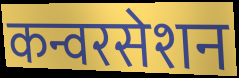
कन्वरसेशन